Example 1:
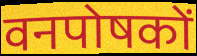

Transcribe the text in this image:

वनपोषकों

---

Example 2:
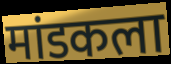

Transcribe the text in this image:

मांडकला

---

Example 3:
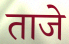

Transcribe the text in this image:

ताजे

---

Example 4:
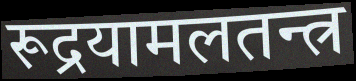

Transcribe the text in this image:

रूद्रयामलतन्त्र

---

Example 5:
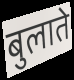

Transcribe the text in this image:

बुलाते